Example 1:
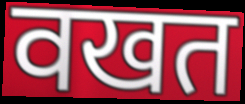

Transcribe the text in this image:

वखत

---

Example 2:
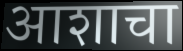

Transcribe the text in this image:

आशाचा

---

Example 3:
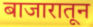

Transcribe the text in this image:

बाजारातून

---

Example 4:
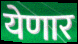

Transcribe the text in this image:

येणार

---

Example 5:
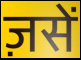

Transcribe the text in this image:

ज़सें